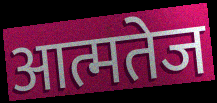
आत्मतेज